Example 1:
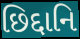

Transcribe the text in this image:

છિદ્દાનિ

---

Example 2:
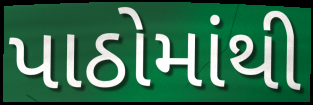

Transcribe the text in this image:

પાઠોમાંથી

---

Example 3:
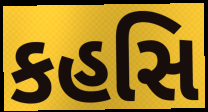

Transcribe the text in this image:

કહસિ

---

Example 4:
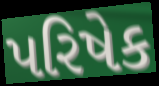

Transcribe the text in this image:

પરિષેક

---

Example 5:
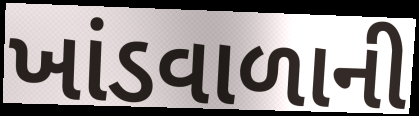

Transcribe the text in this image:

ખાંડવાળાની